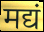
मद्यं